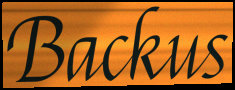
Backus